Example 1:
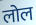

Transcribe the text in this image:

लोल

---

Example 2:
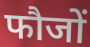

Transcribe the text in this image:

फौजों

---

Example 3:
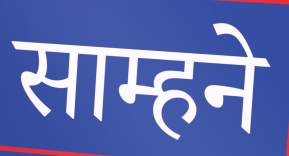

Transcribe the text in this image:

साम्हने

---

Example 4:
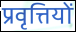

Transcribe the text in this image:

प्रवृत्तियों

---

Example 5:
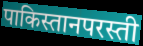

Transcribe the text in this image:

पाकिस्तानपरस्ती